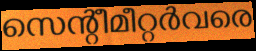
സെന്റീമീറ്റർവരെ